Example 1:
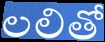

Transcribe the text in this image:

లలితో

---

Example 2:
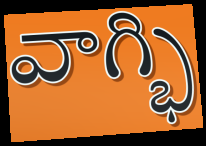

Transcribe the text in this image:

వాగ్భి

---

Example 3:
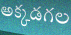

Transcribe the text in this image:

అక్కడగల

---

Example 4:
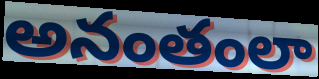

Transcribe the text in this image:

అనంతంలా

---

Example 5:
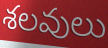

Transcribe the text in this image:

శలవులు